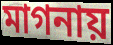
মাগনায়